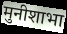
मुनीशाभा